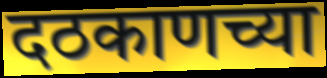
दठकाणच्या